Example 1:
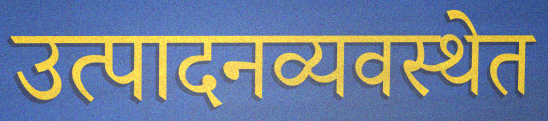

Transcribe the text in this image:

उत्पादनव्यवस्थेत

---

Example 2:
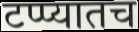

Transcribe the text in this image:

टप्प्यातच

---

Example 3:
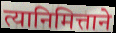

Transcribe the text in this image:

त्यानिमित्ताने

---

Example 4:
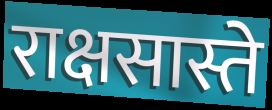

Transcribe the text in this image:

राक्षसास्ते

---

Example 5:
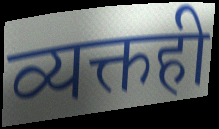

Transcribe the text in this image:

व्यक्तही